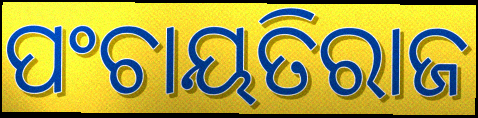
ପଂଚାୟତିରାଜ